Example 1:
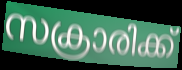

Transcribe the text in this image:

സക്രാരിക്ക്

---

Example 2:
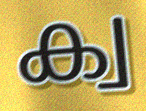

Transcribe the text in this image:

ക്വ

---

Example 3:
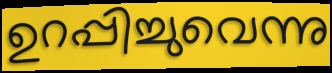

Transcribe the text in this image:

ഉറപ്പിച്ചുവെന്നു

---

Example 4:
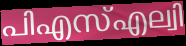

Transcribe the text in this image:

പിഎസ്എല്വി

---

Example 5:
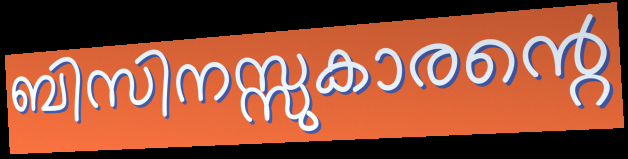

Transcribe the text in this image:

ബിസിനസ്സുകാരന്റെ